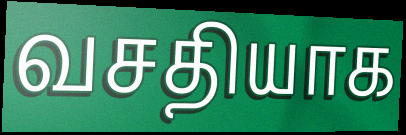
வசதியாக